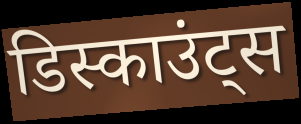
डिस्काउंट्स